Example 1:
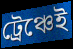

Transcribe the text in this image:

ট্রেঞ্চেই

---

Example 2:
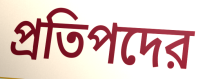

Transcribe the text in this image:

প্রতিপদের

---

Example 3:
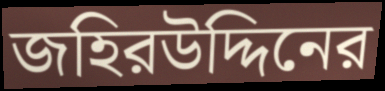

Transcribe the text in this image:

জহিরউদ্দিনের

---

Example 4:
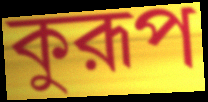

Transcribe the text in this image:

কুরূপ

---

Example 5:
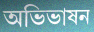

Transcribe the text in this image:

অভিভাষন